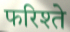
फरिश्ते